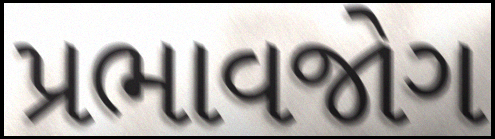
પ્રભાવજોગ